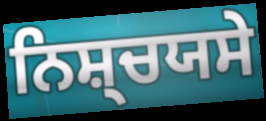
ਨਿਸ਼੍ਚਯਸੇ